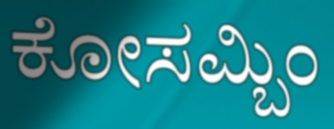
ಕೋಸಮ್ಬಿಂ